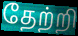
தேற்றி